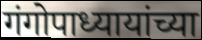
गंगोपाध्यायांच्या